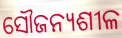
ସୌଜନ୍ୟଶୀଳ